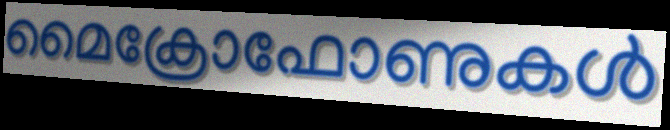
മൈക്രോഫോണുകൾ